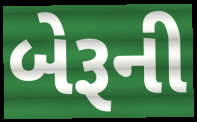
બેરૂની